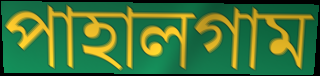
পাহালগাম